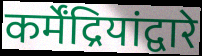
कर्मेंद्रियांद्वारे